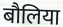
बौलिया